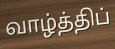
வாழ்த்திப்